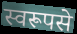
स्वरूपसे